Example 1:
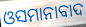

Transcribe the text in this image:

ଓସମାନାବାଦ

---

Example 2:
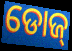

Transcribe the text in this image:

ଡୋଜ୍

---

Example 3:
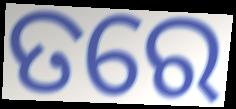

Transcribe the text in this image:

ତରେ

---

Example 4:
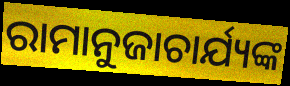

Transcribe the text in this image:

ରାମାନୁଜାଚାର୍ଯ୍ୟଙ୍କ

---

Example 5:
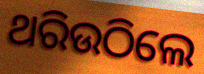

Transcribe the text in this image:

ଥରିଉଠିଲେ